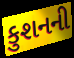
કુશનની